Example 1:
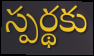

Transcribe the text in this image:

స్పర్థకు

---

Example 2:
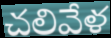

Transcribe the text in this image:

చలివేళ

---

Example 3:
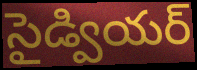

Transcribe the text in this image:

సైడ్వియర్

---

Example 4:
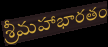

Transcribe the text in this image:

శ్రీమహాభారతం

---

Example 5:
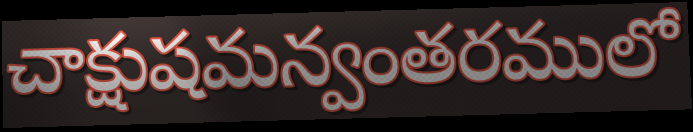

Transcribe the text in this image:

చాక్షుషమన్వంతరములో